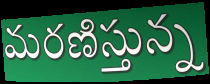
మరణిస్తున్న